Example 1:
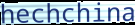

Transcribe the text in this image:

hechchina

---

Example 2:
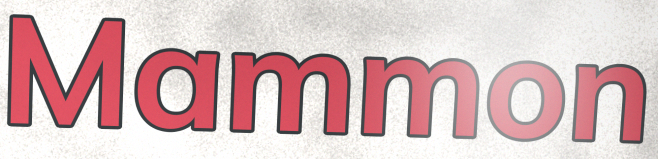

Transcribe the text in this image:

Mammon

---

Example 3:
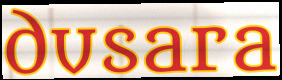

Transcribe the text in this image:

dusara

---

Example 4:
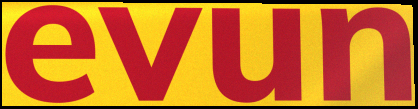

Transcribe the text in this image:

evun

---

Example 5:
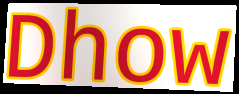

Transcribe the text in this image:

Dhow